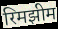
रिमझीम